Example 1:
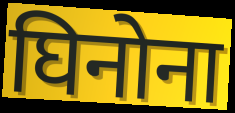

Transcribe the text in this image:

घिनोना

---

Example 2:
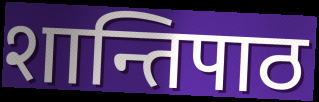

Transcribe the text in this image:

शान्तिपाठ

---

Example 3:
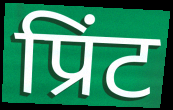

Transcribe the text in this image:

प्रिंट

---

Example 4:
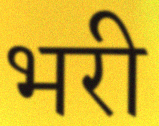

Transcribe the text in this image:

भरी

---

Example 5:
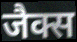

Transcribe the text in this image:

जैक्स